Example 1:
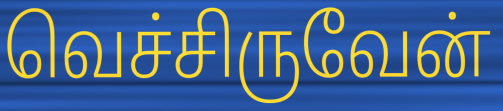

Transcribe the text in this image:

வெச்சிருவேன்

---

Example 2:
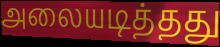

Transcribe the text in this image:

அலையடித்தது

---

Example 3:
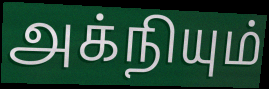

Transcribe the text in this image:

அக்நியும்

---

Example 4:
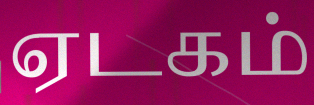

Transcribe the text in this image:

ஏடகம்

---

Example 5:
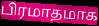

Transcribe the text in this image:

பிரமாதமாக